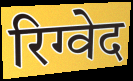
रिग्वेद